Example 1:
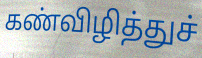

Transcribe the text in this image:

கண்விழித்துச்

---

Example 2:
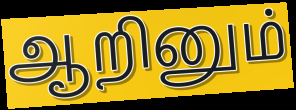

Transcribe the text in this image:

ஆறினும்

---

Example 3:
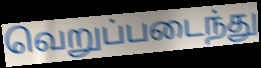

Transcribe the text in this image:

வெறுப்படைந்து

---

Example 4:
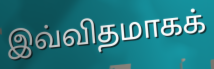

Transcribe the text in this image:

இவ்விதமாகக்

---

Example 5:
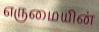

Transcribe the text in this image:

எருமையின்